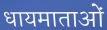
धायमाताओं